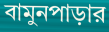
বামুনপাড়ার